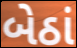
બેઠાં